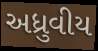
અધ્રુવીય